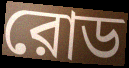
রোড